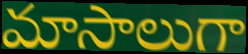
మాసాలుగా